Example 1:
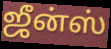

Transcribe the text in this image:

ஜீன்ஸ்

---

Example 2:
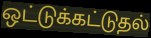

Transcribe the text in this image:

ஒட்டுக்கட்டுதல்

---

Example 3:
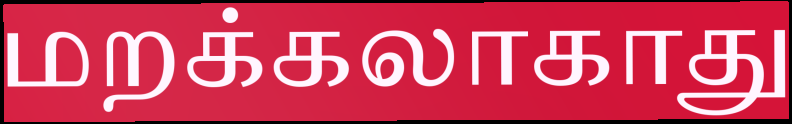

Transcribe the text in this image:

மறக்கலாகாது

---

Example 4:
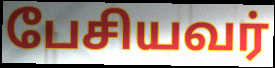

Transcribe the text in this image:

பேசியவர்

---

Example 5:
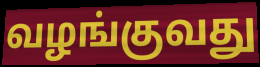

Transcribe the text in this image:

வழங்குவது